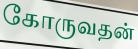
கோருவதன்